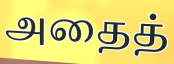
அதைத்